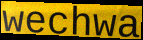
wechwa